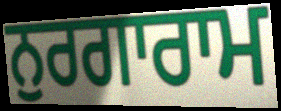
ਨੁਰਗਾਰਾਮ